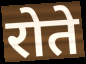
रोते